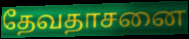
தேவதாசனை